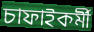
চাফাইকৰ্মী